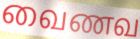
வைணவ